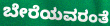
ಬೇರೆಯವರಂತೆ